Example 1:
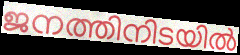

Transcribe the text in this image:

ജനത്തിനിടയിൽ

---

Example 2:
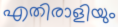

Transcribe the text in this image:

എതിരാളിയും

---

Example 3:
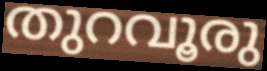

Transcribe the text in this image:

തുറവൂരു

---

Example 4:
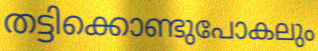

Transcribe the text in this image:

തട്ടിക്കൊണ്ടുപോകലും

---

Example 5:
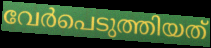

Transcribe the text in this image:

വേർപെടുത്തിയത്